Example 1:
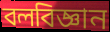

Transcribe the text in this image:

বলবিজ্ঞান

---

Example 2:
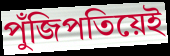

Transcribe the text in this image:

পুঁজিপতিয়েই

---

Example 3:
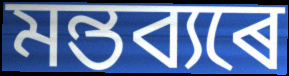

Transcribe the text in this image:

মন্তব্যৰে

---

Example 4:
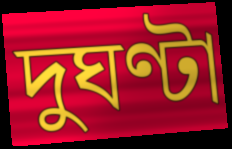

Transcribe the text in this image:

দুঘণ্টা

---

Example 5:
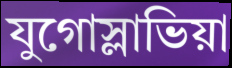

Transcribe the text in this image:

যুগোস্লাভিয়া